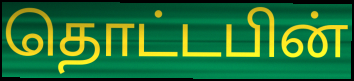
தொட்டபின்